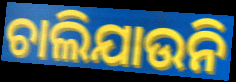
ଚାଲିଯାଉନି